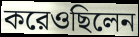
করেওছিলেন